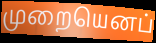
முறையெனப்